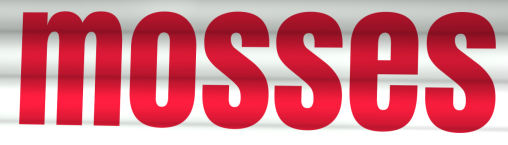
mosses